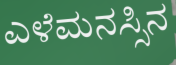
ಎಳೆಮನಸ್ಸಿನ